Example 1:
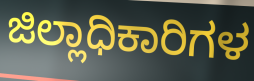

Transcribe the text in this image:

ಜಿಲ್ಲಾಧಿಕಾರಿಗಳ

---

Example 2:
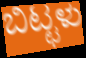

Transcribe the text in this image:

ಬಿಟ್ಟಳು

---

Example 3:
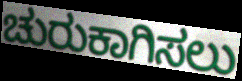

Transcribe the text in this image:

ಚುರುಕಾಗಿಸಲು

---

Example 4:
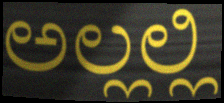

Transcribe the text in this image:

ಅಲ್ಲಲ್ಲಿ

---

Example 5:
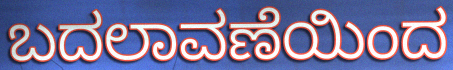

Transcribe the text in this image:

ಬದಲಾವಣೆಯಿಂದ